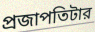
প্রজাপতিটার